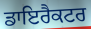
ਡਾਇਰੈਕਟਰ